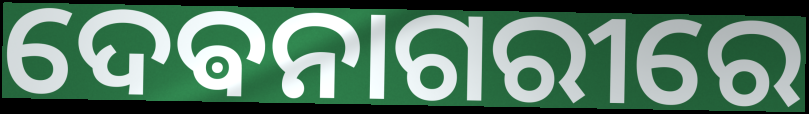
ଦେଵନାଗରୀରେ